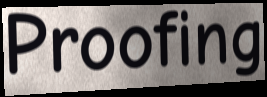
Proofing